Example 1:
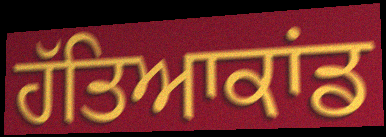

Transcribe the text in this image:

ਹੱਤਿਆਕਾਂਡ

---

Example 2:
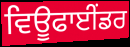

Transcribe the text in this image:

ਵਿਊਫਾਈਂਡਰ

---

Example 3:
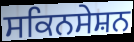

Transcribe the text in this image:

ਸਕਿਨਸੇਸ਼ਨ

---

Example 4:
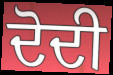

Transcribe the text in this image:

ਦੋਦੀ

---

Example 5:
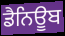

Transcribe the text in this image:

ਡੈਨਿਊਬ